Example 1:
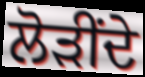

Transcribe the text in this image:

ਲੋੜੀਂਦੇ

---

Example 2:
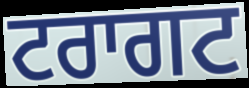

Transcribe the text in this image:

ਟਰਾਗਟ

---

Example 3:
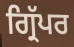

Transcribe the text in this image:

ਗ੍ਰਿੱਪਰ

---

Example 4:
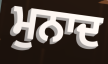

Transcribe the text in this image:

ਮੁਨਾਦ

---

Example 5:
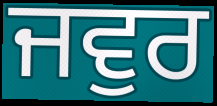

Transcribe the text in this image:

ਜਵੁਰ